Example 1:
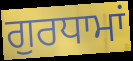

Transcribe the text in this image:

ਗੁਰਧਾਮਾਂ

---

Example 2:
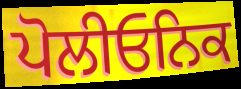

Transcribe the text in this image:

ਪੋਲੀਓਨਿਕ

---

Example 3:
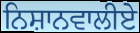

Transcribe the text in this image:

ਨਿਸ਼ਾਨਵਾਲੀਏ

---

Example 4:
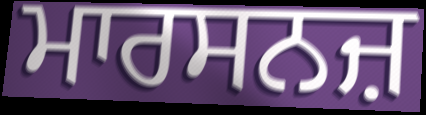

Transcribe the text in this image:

ਮਾਰਸਨਜ਼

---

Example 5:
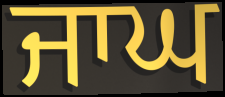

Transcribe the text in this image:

ਜਾਘ